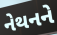
નેથનને